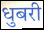
धुबरी